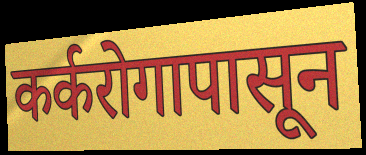
कर्करोगापासून